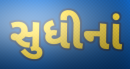
સુધીનાં